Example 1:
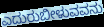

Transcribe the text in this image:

ಎದುರುಬೀಳುವವನು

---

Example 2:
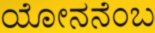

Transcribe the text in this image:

ಯೋನನೆಂಬ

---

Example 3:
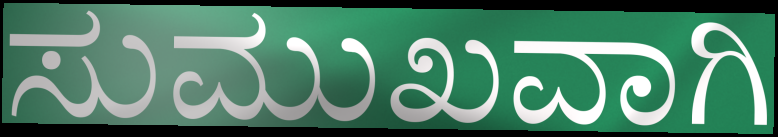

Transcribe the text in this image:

ಸುಮುಖವಾಗಿ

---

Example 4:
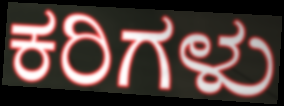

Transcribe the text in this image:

ಕರಿಗಳು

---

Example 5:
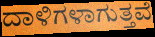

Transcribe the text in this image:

ದಾಳಿಗಳಾಗುತ್ತವೆ